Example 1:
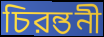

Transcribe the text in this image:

চিরন্তনী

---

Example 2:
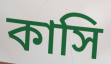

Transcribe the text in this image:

কাসি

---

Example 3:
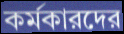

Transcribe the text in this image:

কর্মকারদের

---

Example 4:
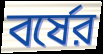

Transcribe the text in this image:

বর্ষের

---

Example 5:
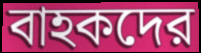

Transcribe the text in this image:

বাহকদের